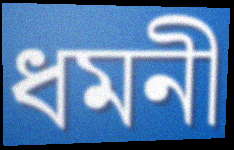
ধমনী